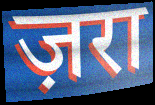
ज़रा